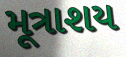
મૂત્રાશય